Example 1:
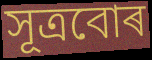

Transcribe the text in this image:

সূত্ৰবোৰ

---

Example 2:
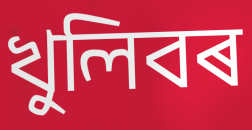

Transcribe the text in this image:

খুলিবৰ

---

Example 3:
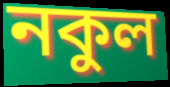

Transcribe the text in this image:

নকুল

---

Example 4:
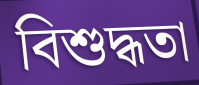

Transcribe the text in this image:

বিশুদ্ধতা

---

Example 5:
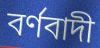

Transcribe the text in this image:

বৰ্ণবাদী